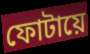
ফোটায়ে